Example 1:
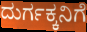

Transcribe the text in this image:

ದುರ್ಗಕ್ಕನಿಗೆ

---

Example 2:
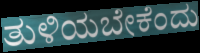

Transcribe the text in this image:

ತುಳಿಯಬೇಕೆಂದು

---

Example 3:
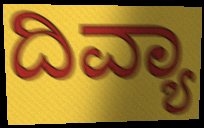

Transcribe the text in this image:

ದಿವ್ಯಾ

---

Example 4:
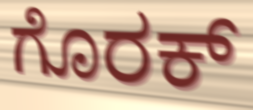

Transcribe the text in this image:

ಗೊರಕ್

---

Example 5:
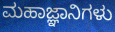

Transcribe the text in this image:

ಮಹಾಜ್ಞಾನಿಗಳು